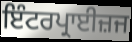
ਇੰਟਰਪ੍ਰਾਈਜ਼ਜ